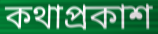
কথাপ্রকাশ